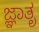
ಜ್ಞಾತೃ